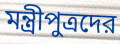
মন্ত্রীপুত্রদের